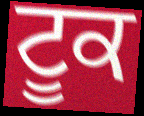
ਟੂਕ